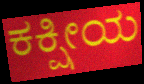
ಕಕ್ಷೀಯ